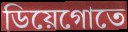
ডিয়েগোতে